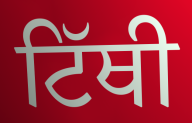
ਟਿੱਥੀ